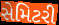
સેમિટરી